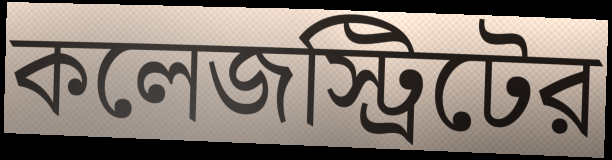
কলেজস্ট্রিটের